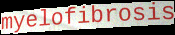
myelofibrosis